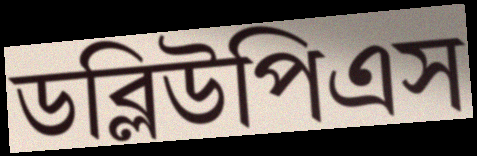
ডব্লিউপিএস